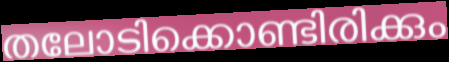
തലോടിക്കൊണ്ടിരിക്കും